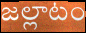
జల్లాటం